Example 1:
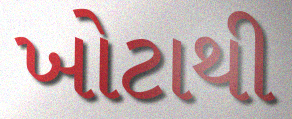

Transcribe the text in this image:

ખોટાથી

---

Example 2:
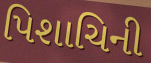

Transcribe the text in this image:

પિશાચિની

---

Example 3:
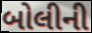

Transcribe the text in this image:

બોલીની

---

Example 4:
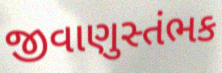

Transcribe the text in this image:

જીવાણુસ્તંભક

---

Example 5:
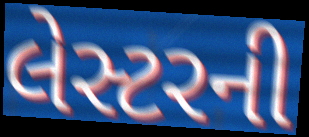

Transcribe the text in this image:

લેસ્ટરની